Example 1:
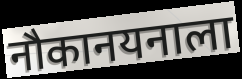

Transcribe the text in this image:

नौकानयनाला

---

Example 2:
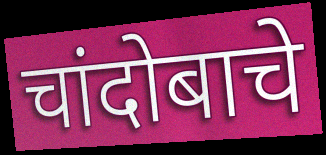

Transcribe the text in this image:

चांदोबाचे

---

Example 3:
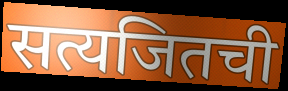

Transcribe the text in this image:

सत्यजितची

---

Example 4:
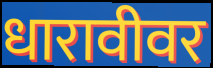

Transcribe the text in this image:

धारावीवर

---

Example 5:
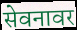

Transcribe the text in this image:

सेवनावर